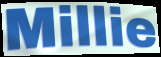
Millie